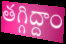
తగ్గిద్దాం